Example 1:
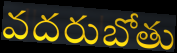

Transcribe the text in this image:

వదరుబోతు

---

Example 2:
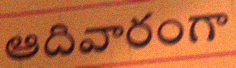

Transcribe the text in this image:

ఆదివారంగా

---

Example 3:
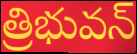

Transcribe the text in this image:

త్రిభువన్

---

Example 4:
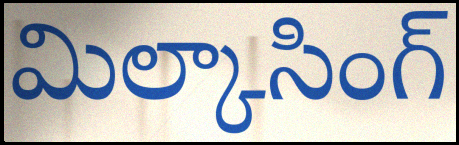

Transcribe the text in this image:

మిల్కాసింగ్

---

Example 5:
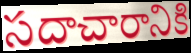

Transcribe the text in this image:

సదాచారానికి